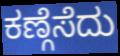
ಕಣ್ಗೆಸೆದು